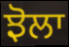
ਝੋਲਾ